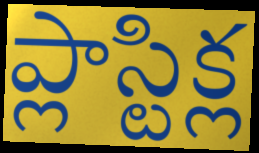
ప్లాస్టిక్ల